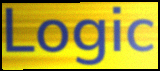
Logic